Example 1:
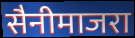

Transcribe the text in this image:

सैनीमाजरा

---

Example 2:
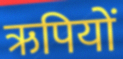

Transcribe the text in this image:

ऋपियों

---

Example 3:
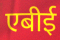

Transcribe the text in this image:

एबीई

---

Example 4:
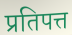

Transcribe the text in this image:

प्रतिपत्त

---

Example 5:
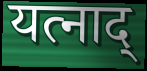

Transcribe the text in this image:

यत्नाद्